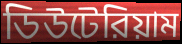
ডিউটেরিয়াম